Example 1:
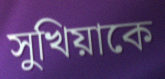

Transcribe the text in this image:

সুখিয়াকে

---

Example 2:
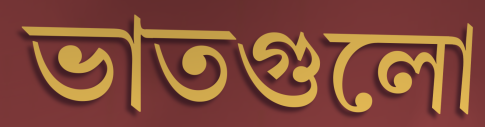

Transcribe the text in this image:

ভাতগুলো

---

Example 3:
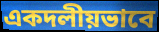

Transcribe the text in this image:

একদলীয়ভাবে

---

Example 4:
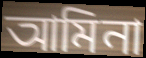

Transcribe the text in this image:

আমিনা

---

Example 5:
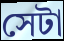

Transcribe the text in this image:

সেটা